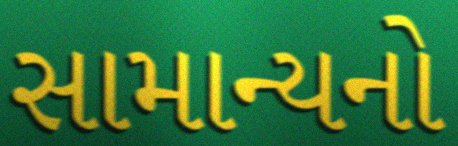
સામાન્યનો